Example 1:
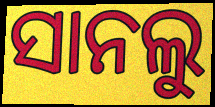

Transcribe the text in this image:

ସାନଲୁ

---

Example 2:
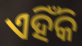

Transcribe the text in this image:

ଏହିଁକି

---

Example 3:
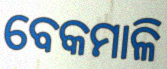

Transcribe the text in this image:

ବେକମାଳି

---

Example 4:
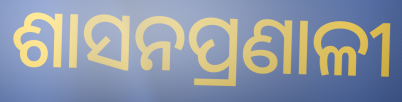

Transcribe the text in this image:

ଶାସନପ୍ରଣାଳୀ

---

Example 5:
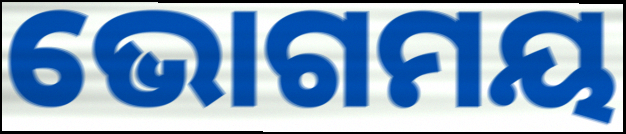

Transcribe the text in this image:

ଭୋଗମୟ